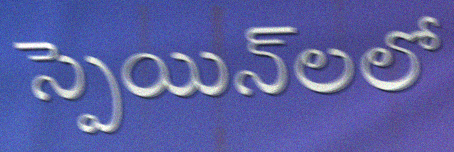
స్పెయిన్‌లలో